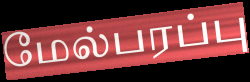
மேல்பரப்பு